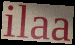
ilaa